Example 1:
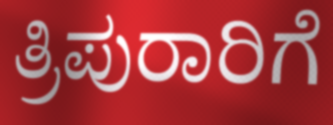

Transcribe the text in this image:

ತ್ರಿಪುರಾರಿಗೆ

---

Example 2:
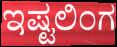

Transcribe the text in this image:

ಇಷ್ಟಲಿಂಗ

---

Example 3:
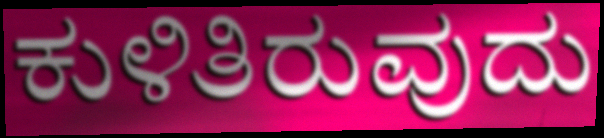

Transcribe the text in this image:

ಕುಳಿತಿರುವುದು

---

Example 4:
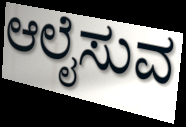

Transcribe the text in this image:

ಆಲೈಸುವ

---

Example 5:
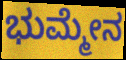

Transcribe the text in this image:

ಭುಮ್ಮೇನ